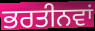
ਭਰਤੀਨਵਾਂ